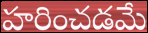
హరించడమే